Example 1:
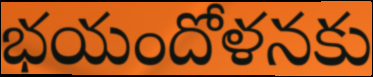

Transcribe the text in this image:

భయందోళనకు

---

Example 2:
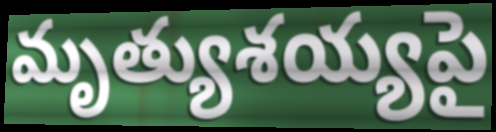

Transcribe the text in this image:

మృత్యుశయ్యపై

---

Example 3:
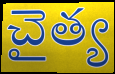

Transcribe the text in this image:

చైత్య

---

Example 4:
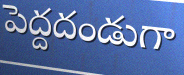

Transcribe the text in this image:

పెద్దదండుగా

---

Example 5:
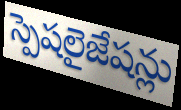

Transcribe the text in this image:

స్పెషలైజేషన్లు